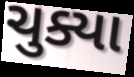
ચુક્યા